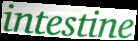
intestine